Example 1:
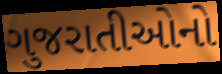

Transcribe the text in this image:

ગુજરાતીઓનો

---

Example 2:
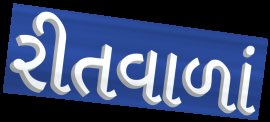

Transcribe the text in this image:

રીતવાળાં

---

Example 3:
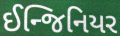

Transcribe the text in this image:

ઈન્જિનિયર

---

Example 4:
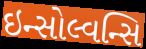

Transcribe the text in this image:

ઇન્સોલ્વન્સિ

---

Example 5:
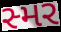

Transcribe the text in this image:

સ્મર